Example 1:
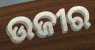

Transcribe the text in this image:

ଉଜୀର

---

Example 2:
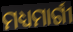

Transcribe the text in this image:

ମଧ୍ୟମାର୍ଗୀ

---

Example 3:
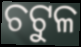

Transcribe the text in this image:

ଚଟୁଳ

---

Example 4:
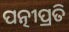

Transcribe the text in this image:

ପତ୍ନୀପ୍ରତି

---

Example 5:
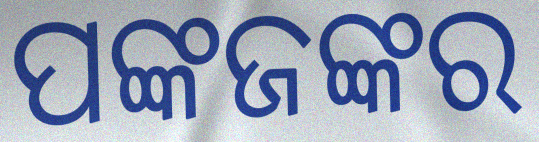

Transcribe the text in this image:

ପଙ୍କଜଙ୍କର